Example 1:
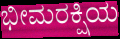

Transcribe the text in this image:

ಭೀಮರಕ್ಷಿಯ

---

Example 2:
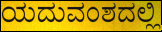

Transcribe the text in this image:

ಯದುವಂಶದಲ್ಲಿ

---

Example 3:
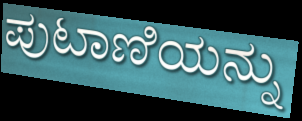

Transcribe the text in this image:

ಪುಟಾಣಿಯನ್ನು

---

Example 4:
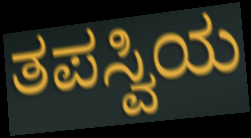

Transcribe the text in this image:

ತಪಸ್ವಿಯ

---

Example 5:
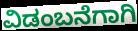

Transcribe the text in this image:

ವಿಡಂಬನೆಗಾಗಿ